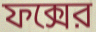
ফক্সের